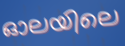
ഓലയിലെ